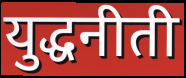
युद्धनीती